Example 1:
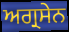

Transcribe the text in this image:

ਅਗ੍ਰਸੇਨ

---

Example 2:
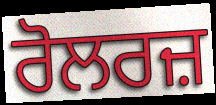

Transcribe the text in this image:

ਰੋਲਰਜ਼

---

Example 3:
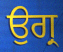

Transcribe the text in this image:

ਉਗ੍ਰ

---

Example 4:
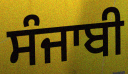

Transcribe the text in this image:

ਸੰਜਾਬੀ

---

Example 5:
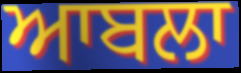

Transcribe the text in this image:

ਆਬਲਾ